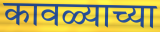
कावळ्याच्या